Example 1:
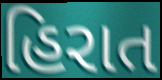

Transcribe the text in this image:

હિરાત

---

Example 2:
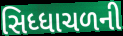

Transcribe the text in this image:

સિધ્ધાચળની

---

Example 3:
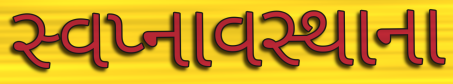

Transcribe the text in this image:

સ્વપ્નાવસ્થાના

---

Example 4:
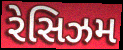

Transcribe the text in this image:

રેસિઝમ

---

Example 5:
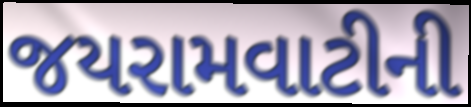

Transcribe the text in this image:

જયરામવાટીની